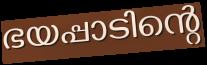
ഭയപ്പാടിന്റെ